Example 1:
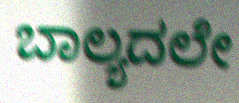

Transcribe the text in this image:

ಬಾಲ್ಯದಲೇ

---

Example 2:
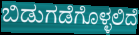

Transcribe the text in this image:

ಬಿಡುಗಡೆಗೊಳ್ಳಲಿದೆ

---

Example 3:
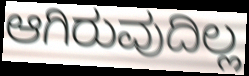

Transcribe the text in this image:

ಆಗಿರುವುದಿಲ್ಲ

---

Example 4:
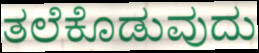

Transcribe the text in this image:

ತಲೆಕೊಡುವುದು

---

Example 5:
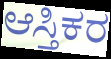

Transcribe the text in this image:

ಆಸ್ತಿಕರ